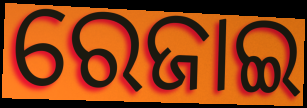
ରେଜାଇ